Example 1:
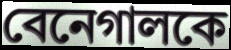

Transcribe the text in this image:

বেনেগালকে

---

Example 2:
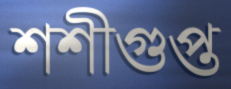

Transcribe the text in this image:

শশীগুপ্ত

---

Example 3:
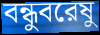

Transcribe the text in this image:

বন্ধুবরেষু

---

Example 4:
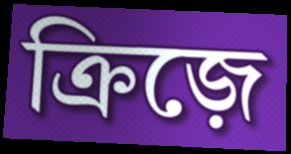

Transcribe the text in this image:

ক্রিজ়ে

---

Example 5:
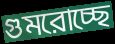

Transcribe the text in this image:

গুমরোচ্ছে